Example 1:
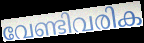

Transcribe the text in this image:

വേണ്ടിവരിക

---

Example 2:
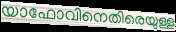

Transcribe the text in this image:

യാഫോവിനെതിരെയുള്ള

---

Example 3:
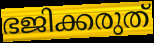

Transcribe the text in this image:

ഭജിക്കരുത്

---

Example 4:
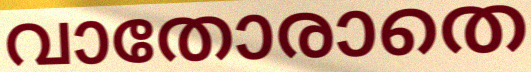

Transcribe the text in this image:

വാതോരാതെ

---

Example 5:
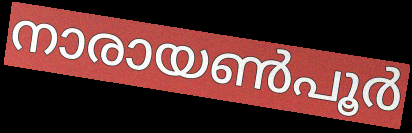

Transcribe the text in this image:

നാരായൺപൂർ